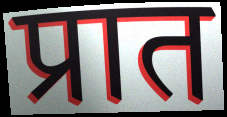
प्रात